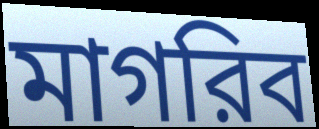
মাগরিব